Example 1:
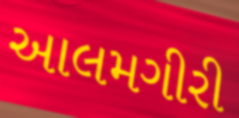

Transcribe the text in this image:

આલમગીરી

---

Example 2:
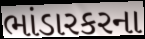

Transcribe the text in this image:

ભાંડારકરના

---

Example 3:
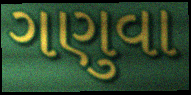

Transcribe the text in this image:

ગણુવા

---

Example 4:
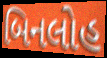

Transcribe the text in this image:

બિનલોહ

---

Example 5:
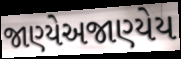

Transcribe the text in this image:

જાણ્યેઅજાણ્યેય